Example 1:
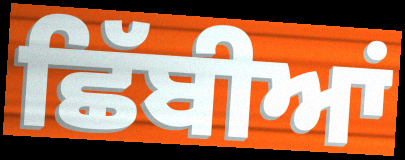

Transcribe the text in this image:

ਛਿੱਬੀਆਂ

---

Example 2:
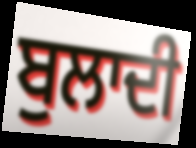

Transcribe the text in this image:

ਬੁਲਾਦੀ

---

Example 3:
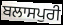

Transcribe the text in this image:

ਬਲਾਸਪੁਰੀ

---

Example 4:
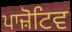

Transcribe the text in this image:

ਪਾਜ਼ੋਟਿਵ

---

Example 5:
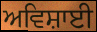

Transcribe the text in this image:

ਅਵਿਸ਼ਾਈ